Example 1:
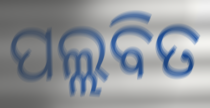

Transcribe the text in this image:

ପଲ୍ଲବିତ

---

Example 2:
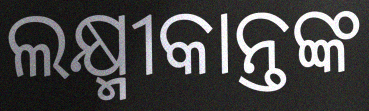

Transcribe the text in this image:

ଲକ୍ଷ୍ମୀକାନ୍ତଙ୍କ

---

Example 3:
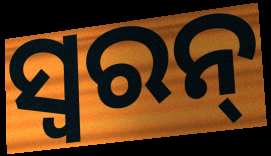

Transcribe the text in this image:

ସ୍ୱରନ୍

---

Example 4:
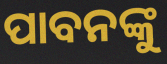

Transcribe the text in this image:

ପାବନଙ୍କୁ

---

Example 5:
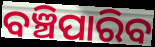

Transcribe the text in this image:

ବଞ୍ଚିପାରିବ